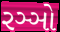
રઞ્ઞો